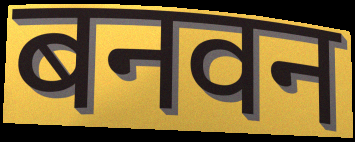
बनवन